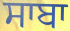
ਸਾਬਾ